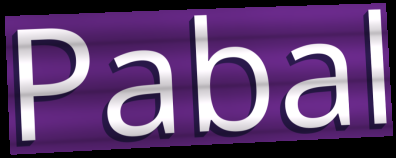
Pabal